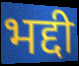
भद्दी